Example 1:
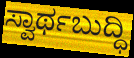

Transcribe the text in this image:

ಸ್ವಾರ್ಥಬುದ್ಧಿ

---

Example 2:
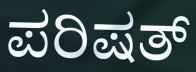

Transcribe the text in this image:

ಪರಿಷತ್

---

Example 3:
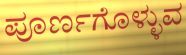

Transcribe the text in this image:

ಪೂರ್ಣಗೊಳ್ಳುವ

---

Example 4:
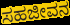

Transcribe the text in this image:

ಸಹಜೀವನ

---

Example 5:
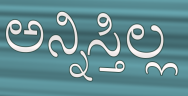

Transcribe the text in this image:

ಅನ್ನಿಸ್ತಿಲ್ಲ